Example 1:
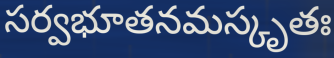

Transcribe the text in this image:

సర్వభూతనమస్కృతః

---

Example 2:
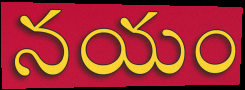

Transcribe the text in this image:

నయం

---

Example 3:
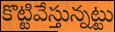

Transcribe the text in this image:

కొట్టివేస్తున్నట్టు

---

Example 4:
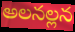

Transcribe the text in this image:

అలనల్లన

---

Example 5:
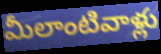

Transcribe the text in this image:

మీలాంటివాళ్లు